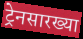
ट्रेनसारख्या